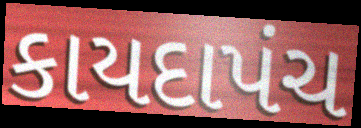
કાયદાપંચ